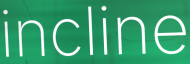
incline